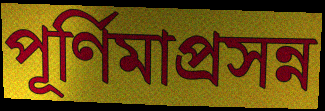
পূর্ণিমাপ্রসন্ন